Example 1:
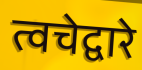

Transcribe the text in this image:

त्वचेद्वारे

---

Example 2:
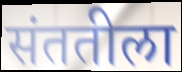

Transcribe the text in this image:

संततीला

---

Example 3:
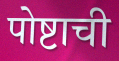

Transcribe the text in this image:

पोष्टाची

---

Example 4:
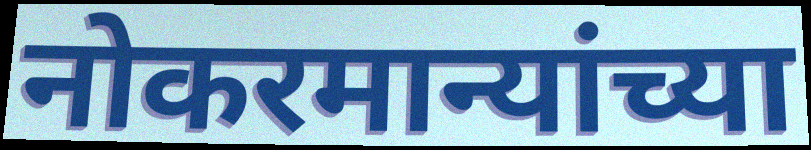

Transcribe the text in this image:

नोकरमान्यांच्या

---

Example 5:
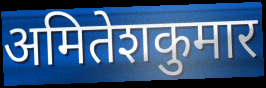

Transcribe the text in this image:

अमितेशकुमार